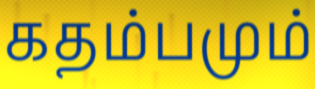
கதம்பமும்